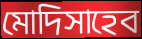
মোদিসাহেব